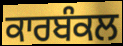
ਕਾਰਬੰਕਲ